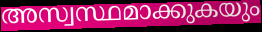
അസ്വസ്ഥമാക്കുകയും